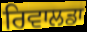
ਰਿਵਾਲਡਾ